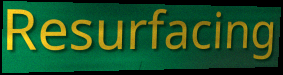
Resurfacing